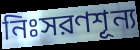
নিঃসরণশূন্য